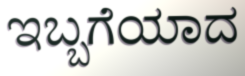
ಇಬ್ಬಗೆಯಾದ